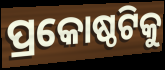
ପ୍ରକୋଷ୍ଠଟିକୁ